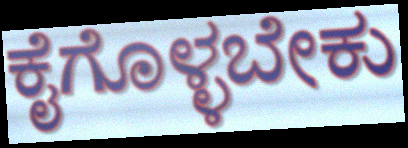
ಕೈಗೊಳ್ಳಬೇಕು